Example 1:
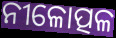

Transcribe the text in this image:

ନୀଳୋତ୍ପଳ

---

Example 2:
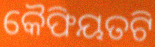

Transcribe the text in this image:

କୈଫିୟତଟି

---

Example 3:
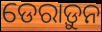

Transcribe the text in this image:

ଡେରାଡ଼ୁନ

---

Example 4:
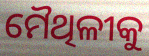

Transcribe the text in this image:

ମୈଥିଳୀକୁ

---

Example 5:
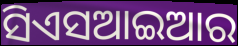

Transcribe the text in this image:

ସିଏସଆଇଆର